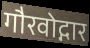
गौरवोद्गार